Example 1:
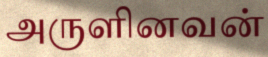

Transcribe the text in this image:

அருளினவன்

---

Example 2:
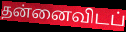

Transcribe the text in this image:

தன்னைவிடப்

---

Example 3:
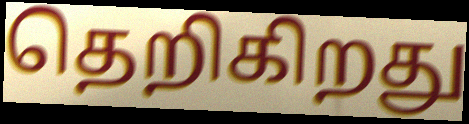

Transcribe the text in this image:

தெறிகிறது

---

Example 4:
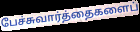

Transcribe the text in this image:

பேச்சுவார்த்தைகளைப்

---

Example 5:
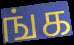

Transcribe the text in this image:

ங்க